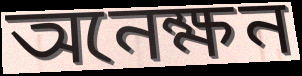
অনেক্ষন